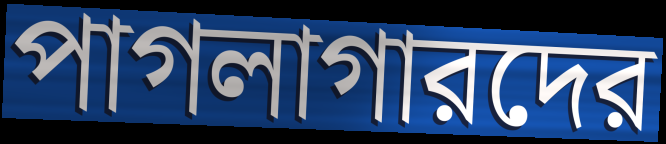
পাগলাগারদের